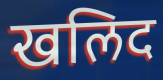
खलिद